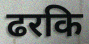
ढरकि